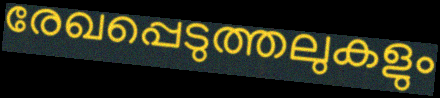
രേഖപ്പെടുത്തലുകളും